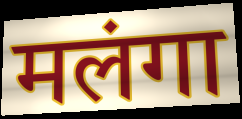
मलंगा